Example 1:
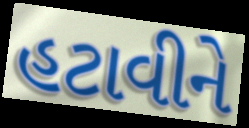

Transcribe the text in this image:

હટાવીને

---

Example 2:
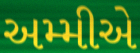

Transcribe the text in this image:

અમ્મીએ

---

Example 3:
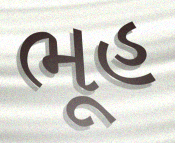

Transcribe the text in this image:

ભૂહ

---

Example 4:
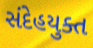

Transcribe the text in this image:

સંદેહયુક્ત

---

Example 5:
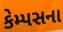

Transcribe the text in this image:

કેમ્પસના